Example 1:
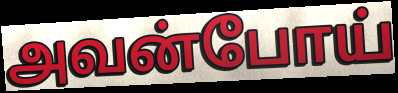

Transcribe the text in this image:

அவன்போய்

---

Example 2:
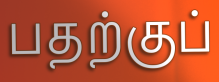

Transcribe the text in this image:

பதற்குப்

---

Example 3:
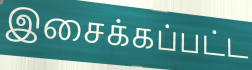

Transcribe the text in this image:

இசைக்கப்பட்ட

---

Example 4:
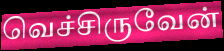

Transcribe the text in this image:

வெச்சிருவேன்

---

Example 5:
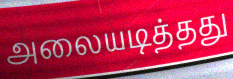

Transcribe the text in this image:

அலையடித்தது